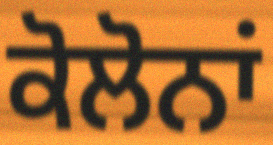
ਕੋਲੋਨਾਂ